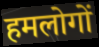
हमलोगों